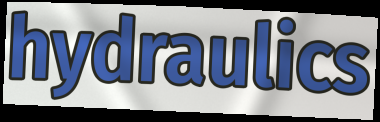
hydraulics